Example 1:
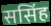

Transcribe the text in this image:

ससिंह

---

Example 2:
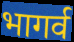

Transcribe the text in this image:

भागर्व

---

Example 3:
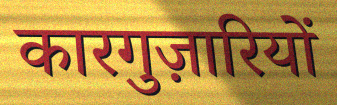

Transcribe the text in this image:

कारगुज़ारियों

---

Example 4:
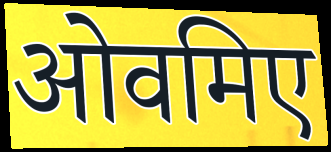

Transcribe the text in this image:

ओवमिए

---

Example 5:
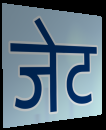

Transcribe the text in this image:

जेट